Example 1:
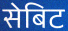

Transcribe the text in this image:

सेबिट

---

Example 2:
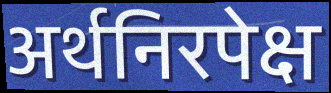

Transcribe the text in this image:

अर्थनिरपेक्ष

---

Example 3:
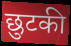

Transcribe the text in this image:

छुटकी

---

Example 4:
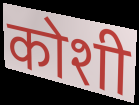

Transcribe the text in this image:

कोशी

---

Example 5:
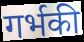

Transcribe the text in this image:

गर्भकी